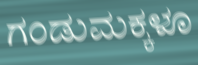
ಗಂಡುಮಕ್ಕಳೂ